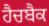
ਹੈਚਬੈਕ